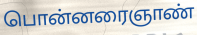
பொன்னரைஞாண்